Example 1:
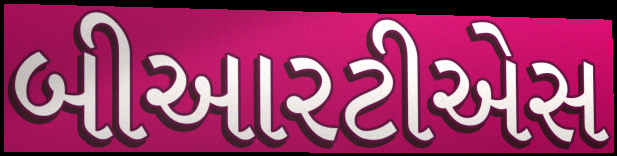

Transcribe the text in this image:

બીઆરટીએસ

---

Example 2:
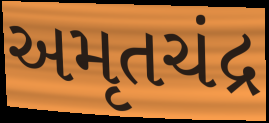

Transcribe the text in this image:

અમૃતચંદ્ર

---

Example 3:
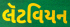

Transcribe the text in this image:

લૅટવિયન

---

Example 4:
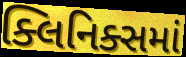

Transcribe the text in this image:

ક્લિનિક્સમાં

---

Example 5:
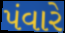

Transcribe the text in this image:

પંવારે